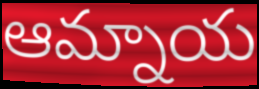
ఆమ్నాయ